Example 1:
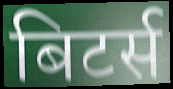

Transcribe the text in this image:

बिटर्स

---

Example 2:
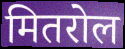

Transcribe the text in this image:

मितरोल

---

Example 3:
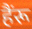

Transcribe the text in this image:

हैंरू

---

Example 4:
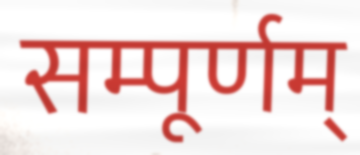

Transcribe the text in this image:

सम्पूर्णम्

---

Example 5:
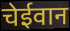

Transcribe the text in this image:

चेईवान